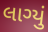
લાગ્યું